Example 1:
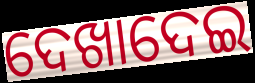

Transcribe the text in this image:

ଦେଖାଦେଇ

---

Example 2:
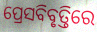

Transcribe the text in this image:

ପ୍ରେସବିବୃତ୍ତିରେ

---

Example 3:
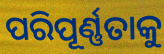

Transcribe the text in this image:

ପରିପୂର୍ଣ୍ଣତାକୁ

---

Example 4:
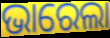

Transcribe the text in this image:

ଭାରେଲା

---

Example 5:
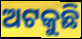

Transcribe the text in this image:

ଅଟକୁଛି